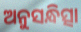
ଅନୁସନ୍ଧିତ୍ସା